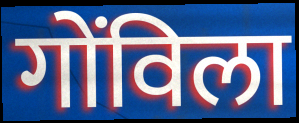
गोंविला